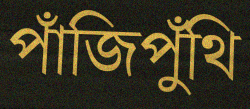
পাঁজিপুঁথি